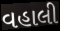
વહાલી